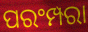
ପରଂମ୍ପରା